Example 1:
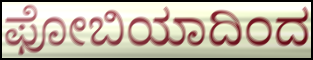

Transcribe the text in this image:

ಫೋಬಿಯಾದಿಂದ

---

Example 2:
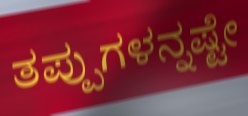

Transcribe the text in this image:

ತಪ್ಪುಗಳನ್ನಷ್ಟೇ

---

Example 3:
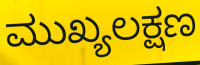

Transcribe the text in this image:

ಮುಖ್ಯಲಕ್ಷಣ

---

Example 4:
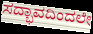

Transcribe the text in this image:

ಸದ್ಭಾವದಿಂದಲೇ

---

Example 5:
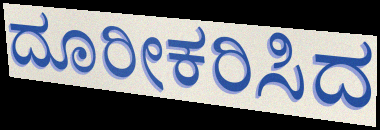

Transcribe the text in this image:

ದೂರೀಕರಿಸಿದ